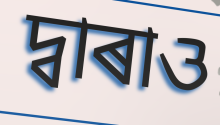
দ্বাৰাও